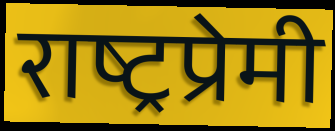
राष्ट्रप्रेमी